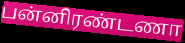
பன்னிரண்டணா